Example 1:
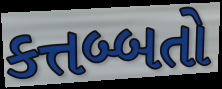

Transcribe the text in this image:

કત્તબ્બતો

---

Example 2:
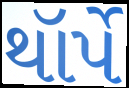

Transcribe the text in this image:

થૉર્પે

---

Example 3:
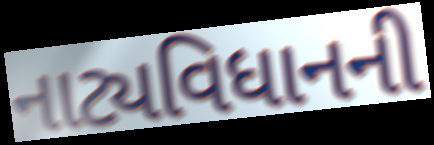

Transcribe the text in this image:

નાટ્યવિધાનની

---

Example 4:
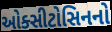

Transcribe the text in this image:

ઓક્સીટોસિનનો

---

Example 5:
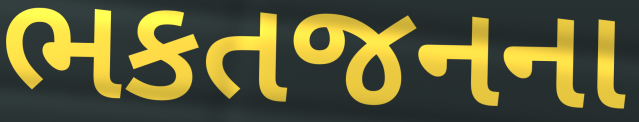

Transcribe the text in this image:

ભકતજનના